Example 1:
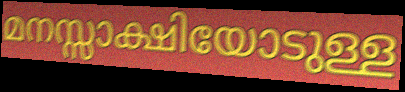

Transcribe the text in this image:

മനസ്സാക്ഷിയോടുള്ള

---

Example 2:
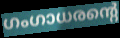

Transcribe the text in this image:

ഗംഗാധരന്റെ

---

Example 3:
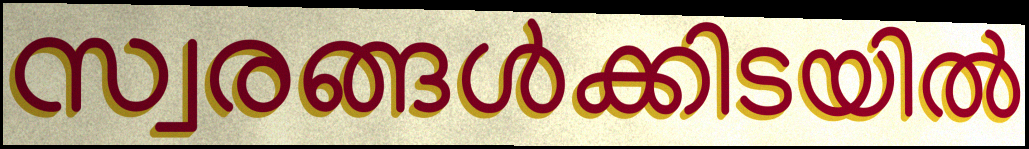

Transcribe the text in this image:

സ്വരങ്ങൾക്കിടയിൽ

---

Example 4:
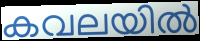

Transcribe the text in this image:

കവലയിൽ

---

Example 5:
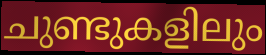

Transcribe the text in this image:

ചുണ്ടുകളിലും